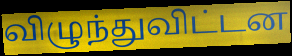
விழுந்துவிட்டன